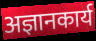
अज्ञानकार्य